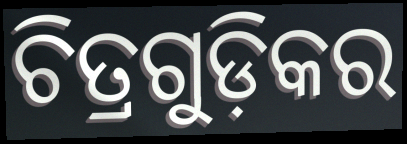
ଚିତ୍ରଗୁଡ଼ିକର